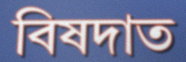
বিষদাত